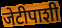
जेटीपाशी